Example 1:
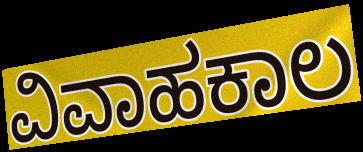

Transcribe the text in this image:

ವಿವಾಹಕಾಲ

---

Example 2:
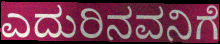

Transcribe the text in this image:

ಎದುರಿನವನಿಗೆ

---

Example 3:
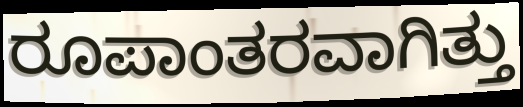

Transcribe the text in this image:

ರೂಪಾಂತರವಾಗಿತ್ತು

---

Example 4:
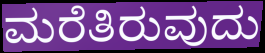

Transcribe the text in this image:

ಮರೆತಿರುವುದು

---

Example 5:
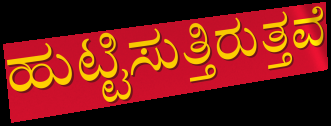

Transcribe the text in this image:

ಹುಟ್ಟಿಸುತ್ತಿರುತ್ತವೆ